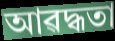
আৱদ্ধতা